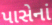
પાસેનાં